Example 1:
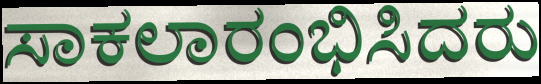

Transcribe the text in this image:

ಸಾಕಲಾರಂಭಿಸಿದರು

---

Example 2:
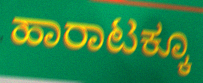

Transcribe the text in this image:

ಹಾರಾಟಕ್ಕೂ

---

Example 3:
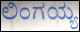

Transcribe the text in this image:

ಲಿಂಗಯ್ಯ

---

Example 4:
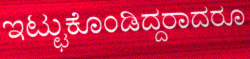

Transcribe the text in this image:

ಇಟ್ಟುಕೊಂಡಿದ್ದರಾದರೂ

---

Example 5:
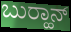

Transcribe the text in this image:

ಬುರ‍್ಹಾನ್